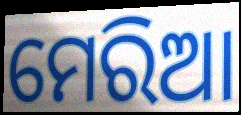
ମେରିଆ